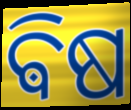
ଵିଷ